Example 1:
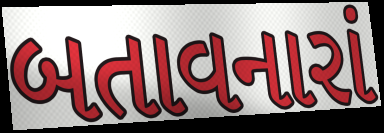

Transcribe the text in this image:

બતાવનારાં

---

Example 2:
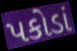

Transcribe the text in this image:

પકોડાં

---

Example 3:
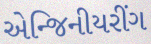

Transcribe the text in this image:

એન્જિનીયરીંગ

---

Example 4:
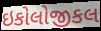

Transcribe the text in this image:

ઇકોલોજીકલ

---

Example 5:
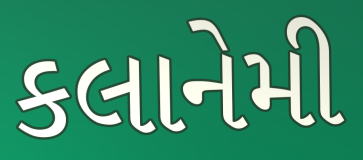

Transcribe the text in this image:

કલાનેમી